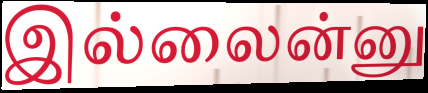
இல்லைன்னு